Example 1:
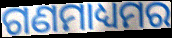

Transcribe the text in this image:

ଗଣମାଧ୍ୟମର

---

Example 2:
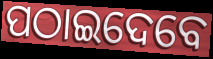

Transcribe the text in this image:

ପଠାଇଦେବେ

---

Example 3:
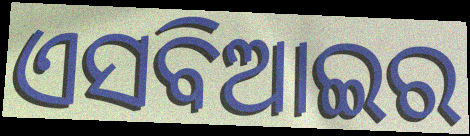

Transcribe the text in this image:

ଏସବିଆଇର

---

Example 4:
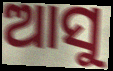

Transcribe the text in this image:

ଆସୁ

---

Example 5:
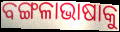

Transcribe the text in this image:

ବଙ୍ଗଳାଭାଷାକୁ